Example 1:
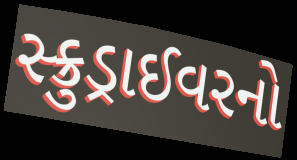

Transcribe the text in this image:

સ્ક્રુડ્રાઈવરનો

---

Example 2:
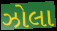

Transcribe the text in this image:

ઝોલા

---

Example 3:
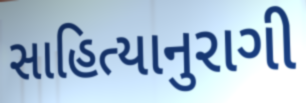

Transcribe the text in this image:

સાહિત્યાનુરાગી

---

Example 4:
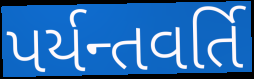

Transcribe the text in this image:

પર્યન્તવર્તિ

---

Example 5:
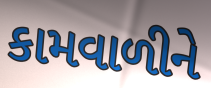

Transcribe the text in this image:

કામવાળીને